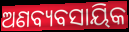
ଅଣବ୍ୟବସାୟିକ